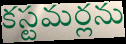
కస్టమర్లను